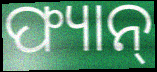
ଫ୍ୟାନ୍